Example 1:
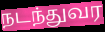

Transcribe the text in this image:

நடந்துவர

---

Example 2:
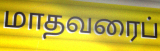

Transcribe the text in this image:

மாதவரைப்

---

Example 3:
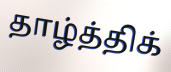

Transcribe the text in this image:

தாழ்த்திக்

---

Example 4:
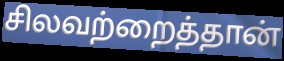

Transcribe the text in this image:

சிலவற்றைத்தான்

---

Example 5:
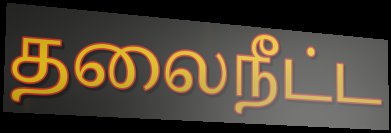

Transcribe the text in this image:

தலைநீட்ட